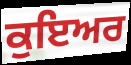
ਕੁਇਅਰ